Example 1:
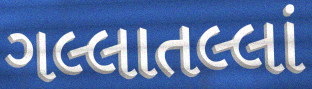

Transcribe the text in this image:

ગલ્લાતલ્લાં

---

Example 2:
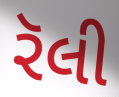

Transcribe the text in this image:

રૅલી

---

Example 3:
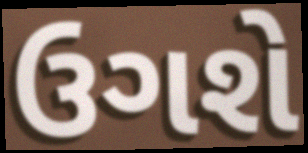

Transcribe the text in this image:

ઉગશે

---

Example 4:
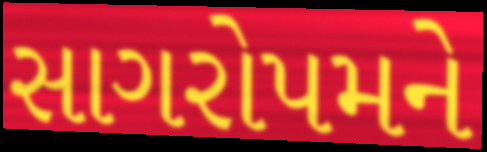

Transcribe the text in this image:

સાગરોપમને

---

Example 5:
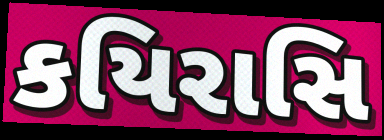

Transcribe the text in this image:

કયિરાસિ